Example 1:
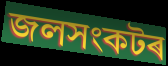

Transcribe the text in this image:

জলসংকটৰ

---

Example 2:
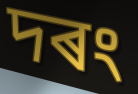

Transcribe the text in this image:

দৰং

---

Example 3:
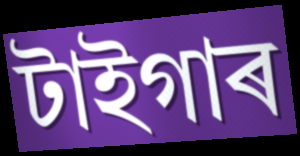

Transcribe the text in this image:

টাইগাৰ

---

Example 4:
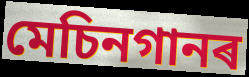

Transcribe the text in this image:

মেচিনগানৰ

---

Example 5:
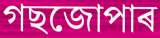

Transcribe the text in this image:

গছজোপাৰ